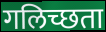
गलिच्छता